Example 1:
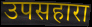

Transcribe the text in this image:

उपसहारा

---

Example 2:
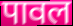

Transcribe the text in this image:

पावल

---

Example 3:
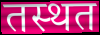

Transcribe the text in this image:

तस्थत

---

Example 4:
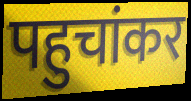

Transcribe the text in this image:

पहुचांकर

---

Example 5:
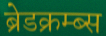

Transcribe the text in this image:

ब्रेडक्रम्ब्स